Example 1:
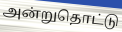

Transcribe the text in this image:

அன்றுதொட்டு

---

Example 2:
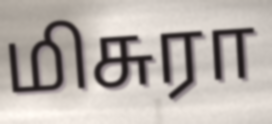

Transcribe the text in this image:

மிசுரா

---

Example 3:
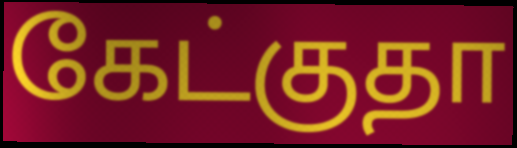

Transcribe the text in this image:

கேட்குதா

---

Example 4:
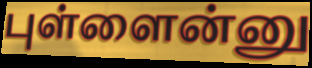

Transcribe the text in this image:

புள்ளைன்னு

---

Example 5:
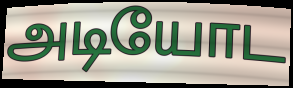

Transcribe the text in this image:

அடியோட